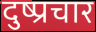
दुष्प्रचार